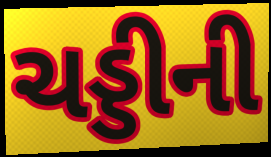
ચડ્ડીની